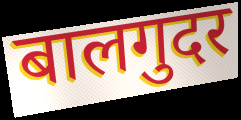
बालगुदर